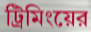
ট্রিমিংয়ের